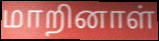
மாறினாள்